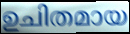
ഉചിതമായ